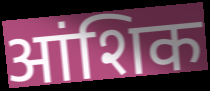
आंशिक